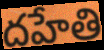
దహేతి